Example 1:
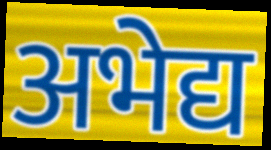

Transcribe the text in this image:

अभेद्य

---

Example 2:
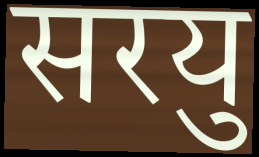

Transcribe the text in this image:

सरयु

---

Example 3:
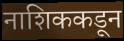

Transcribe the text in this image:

नाशिककडून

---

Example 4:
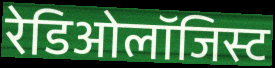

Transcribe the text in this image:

रेडिओलॉजिस्ट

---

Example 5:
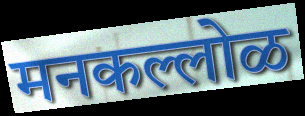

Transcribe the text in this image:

मनकल्लोळ